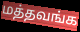
மத்தவங்க